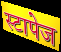
स्टापेज